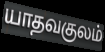
யாதவகுலம்